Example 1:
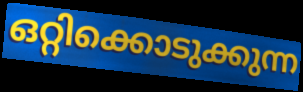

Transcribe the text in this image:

ഒറ്റിക്കൊടുക്കുന്ന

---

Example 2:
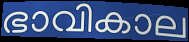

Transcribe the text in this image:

ഭാവികാല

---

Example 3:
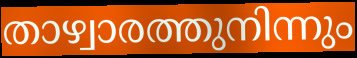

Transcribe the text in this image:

താഴ്വാരത്തുനിന്നും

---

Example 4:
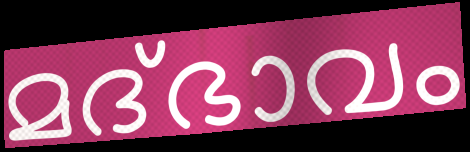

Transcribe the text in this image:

മദ്ഭാവം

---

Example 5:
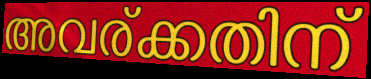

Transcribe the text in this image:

അവര്ക്കതിന്